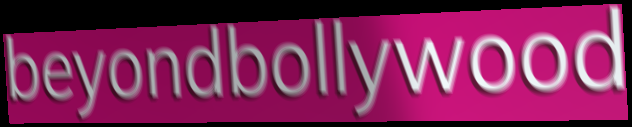
beyondbollywood